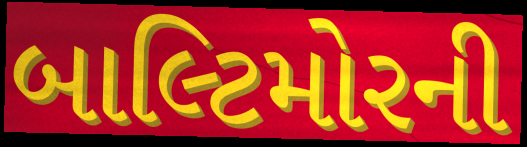
બાલ્ટિમોરની